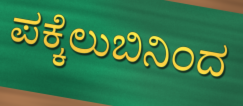
ಪಕ್ಕೆಲುಬಿನಿಂದ